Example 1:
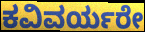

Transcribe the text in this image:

ಕವಿವರ್ಯರೇ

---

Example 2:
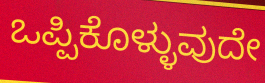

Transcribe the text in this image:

ಒಪ್ಪಿಕೊಳ್ಳುವುದೇ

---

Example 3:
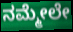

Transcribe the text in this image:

ನಮ್ಮೇಲೇ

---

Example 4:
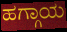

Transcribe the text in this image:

ಹಗ್ಗಾಯ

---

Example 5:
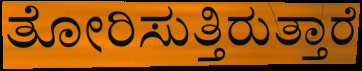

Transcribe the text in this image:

ತೋರಿಸುತ್ತಿರುತ್ತಾರೆ